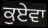
ਕੁਏਵਾ